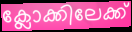
ക്ലോക്കിലേക്ക്